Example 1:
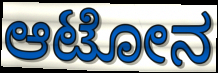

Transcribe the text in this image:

ಆಟೋನ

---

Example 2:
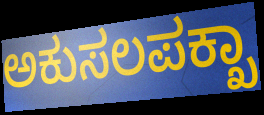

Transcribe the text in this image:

ಅಕುಸಲಪಕ್ಖಾ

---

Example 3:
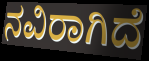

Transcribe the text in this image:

ನವಿರಾಗಿದೆ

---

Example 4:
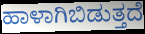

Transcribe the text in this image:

ಹಾಳಾಗಿಬಿಡುತ್ತದೆ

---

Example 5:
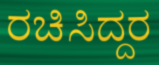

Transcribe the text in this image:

ರಚಿಸಿದ್ದರ